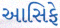
આસિફે